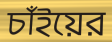
চাঁইয়ের